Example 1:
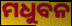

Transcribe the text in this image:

ମଧୁବନ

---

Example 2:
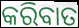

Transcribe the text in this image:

କରିବାତ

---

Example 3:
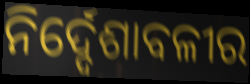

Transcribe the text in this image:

ନିର୍ଦ୍ଦେଶାବଳୀର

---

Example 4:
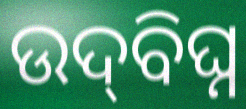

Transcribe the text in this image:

ଉଦ୍‍ବିଘ୍ନ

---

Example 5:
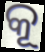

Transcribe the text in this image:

କୂ